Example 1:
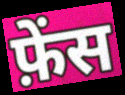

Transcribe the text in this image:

फ़ेंस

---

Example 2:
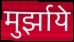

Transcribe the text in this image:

मुर्झाये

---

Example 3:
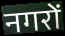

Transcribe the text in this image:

नगरों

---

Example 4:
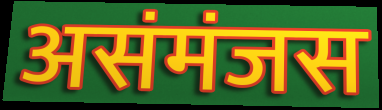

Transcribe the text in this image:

असंमंजस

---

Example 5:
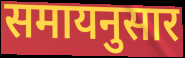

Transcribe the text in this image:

समायनुसार